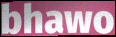
bhawo